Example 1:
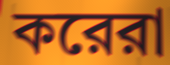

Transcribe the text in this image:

করেরা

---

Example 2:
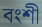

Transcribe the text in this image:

বংশী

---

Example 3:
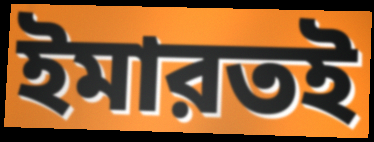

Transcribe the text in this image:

ইমারতই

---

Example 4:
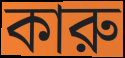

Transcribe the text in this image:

কারু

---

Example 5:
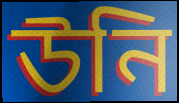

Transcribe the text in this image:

উনি